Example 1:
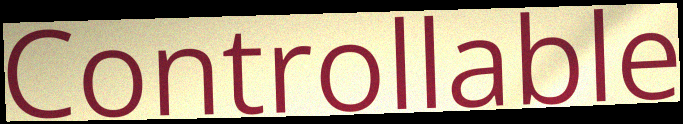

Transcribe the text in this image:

Controllable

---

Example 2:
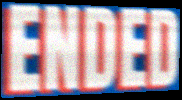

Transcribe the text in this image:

ENDED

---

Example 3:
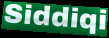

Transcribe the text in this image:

Siddiqi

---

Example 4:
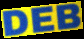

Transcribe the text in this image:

DEB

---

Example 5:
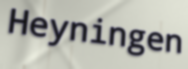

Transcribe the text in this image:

Heyningen